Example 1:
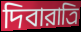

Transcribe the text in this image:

দিবারাত্রি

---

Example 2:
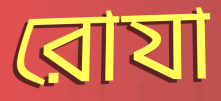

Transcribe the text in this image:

রোযা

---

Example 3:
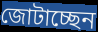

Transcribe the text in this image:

জোটাচ্ছেন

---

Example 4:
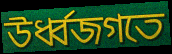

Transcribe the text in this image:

উর্ধ্বজগতে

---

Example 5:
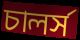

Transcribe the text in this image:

চালর্স